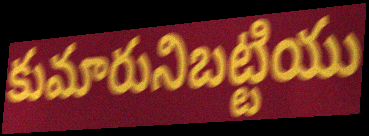
కుమారునిబట్టియు